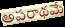
అపరాథమే